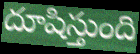
దూషిస్తుంది